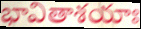
భావితాశయాః